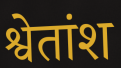
श्वेतांश